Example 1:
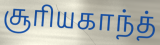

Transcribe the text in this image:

சூரியகாந்த்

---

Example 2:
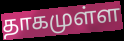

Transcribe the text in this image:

தாகமுள்ள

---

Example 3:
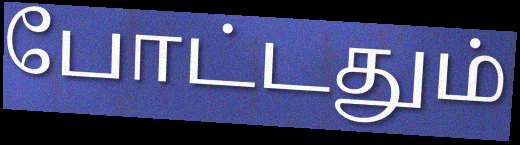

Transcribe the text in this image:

போட்டதும்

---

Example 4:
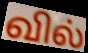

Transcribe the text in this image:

வில்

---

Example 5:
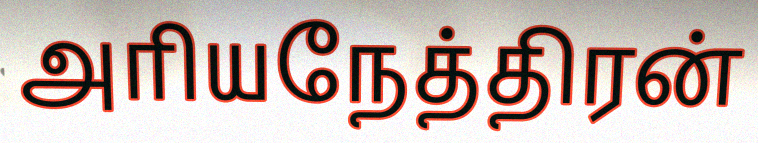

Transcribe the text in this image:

அரியநேத்திரன்